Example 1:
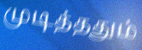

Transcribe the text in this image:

முடித்ததும்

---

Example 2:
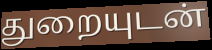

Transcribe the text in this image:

துறையுடன்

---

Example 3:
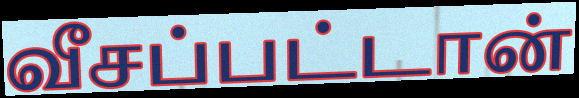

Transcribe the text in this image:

வீசப்பட்டான்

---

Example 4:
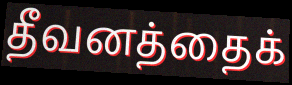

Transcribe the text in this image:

தீவனத்தைக்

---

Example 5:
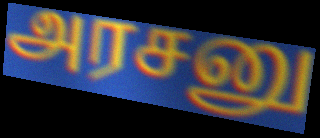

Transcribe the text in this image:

அரசனு